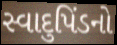
સ્વાદુપિંડનો